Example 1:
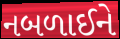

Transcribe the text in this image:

નબળાઈને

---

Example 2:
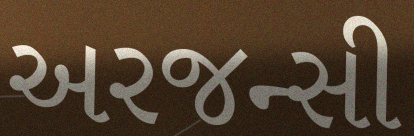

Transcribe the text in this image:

અરજન્સી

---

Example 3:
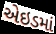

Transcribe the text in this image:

એઇડમાં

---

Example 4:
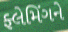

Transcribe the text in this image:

ફ્લેમિંગને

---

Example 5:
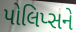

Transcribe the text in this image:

પોલિપ્સને